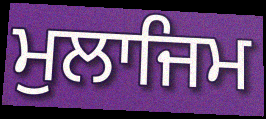
ਮੁਲਾਜਿਮ